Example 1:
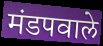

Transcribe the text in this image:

मंडपवाले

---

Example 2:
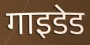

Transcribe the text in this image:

गाइडेड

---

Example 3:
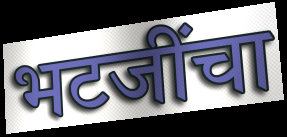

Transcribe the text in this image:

भटजींचा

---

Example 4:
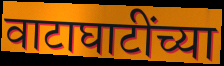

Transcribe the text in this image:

वाटाघाटींच्या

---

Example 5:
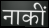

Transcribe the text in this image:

नाकीं